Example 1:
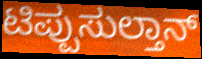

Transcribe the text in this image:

ಟಿಪ್ಪುಸುಲ್ತಾನ್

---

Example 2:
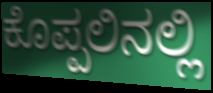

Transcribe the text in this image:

ಕೊಪ್ಪಲಿನಲ್ಲಿ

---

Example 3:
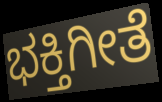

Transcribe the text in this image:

ಭಕ್ತಿಗೀತೆ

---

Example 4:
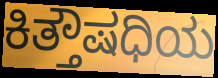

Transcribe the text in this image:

ಕಿತ್ತೌಷಧಿಯ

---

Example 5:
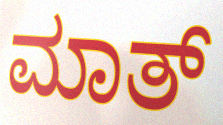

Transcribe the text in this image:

ಮಾತ್